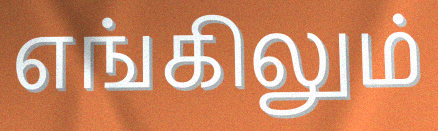
எங்கிலும்